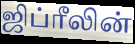
ஜிப்ரீலின்